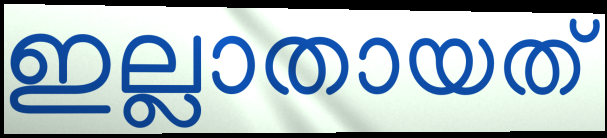
ഇല്ലാതായത്